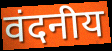
वंदनीय